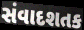
સંવાદશતક